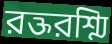
রক্তরশ্মি